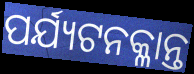
ପର୍ଯ୍ୟଟନକ୍ଳାନ୍ତ